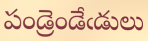
పండ్రెండేఁడులు